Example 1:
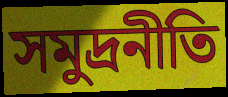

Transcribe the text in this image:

সমুদ্রনীতি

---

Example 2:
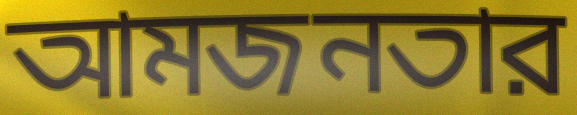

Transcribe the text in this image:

আমজনতার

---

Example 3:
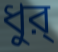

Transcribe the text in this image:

ধুর্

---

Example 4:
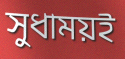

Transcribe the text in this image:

সুধাময়ই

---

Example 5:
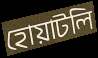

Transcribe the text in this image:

হোয়াটলি